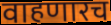
वाहणारच